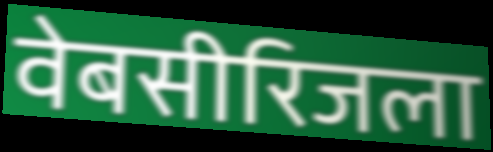
वेबसीरिजला